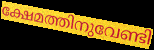
ക്ഷേമത്തിനുവേണ്ടി